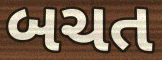
બચત